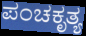
ಪಂಚಕೃತ್ಯ